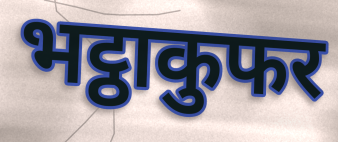
भट्ठाकुफर